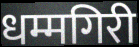
धम्मगिरी